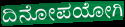
ದಿನೋಪಯೋಗಿ